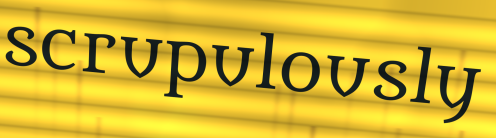
scrupulously